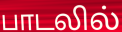
பாடலில்